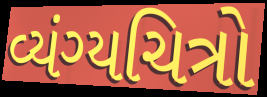
વ્યંગ્યચિત્રો